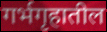
गर्भगृहातील